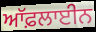
ਆੱਫ਼ਲਾਈਨ